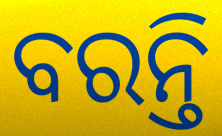
ବରନ୍ତି